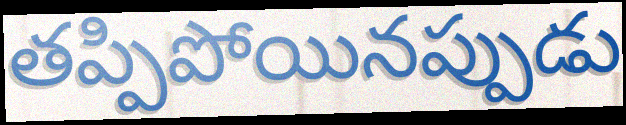
తప్పిపోయినప్పుడు